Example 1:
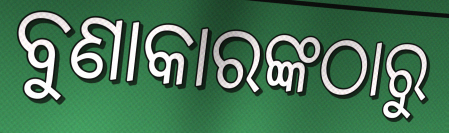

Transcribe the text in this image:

ବୁଣାକାରଙ୍କଠାରୁ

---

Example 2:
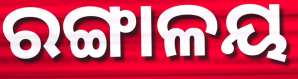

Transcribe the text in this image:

ରଙ୍ଗାଳୟ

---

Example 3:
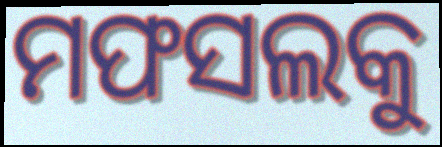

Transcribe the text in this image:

ମଫସଲକୁ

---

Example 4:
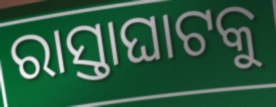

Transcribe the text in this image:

ରାସ୍ତାଘାଟକୁ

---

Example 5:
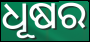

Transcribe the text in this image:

ଧୂଷର